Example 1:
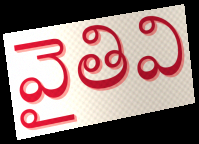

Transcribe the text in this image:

వైతివి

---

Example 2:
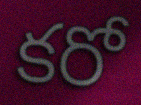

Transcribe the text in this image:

కరో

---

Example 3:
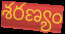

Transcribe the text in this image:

శరణ్యం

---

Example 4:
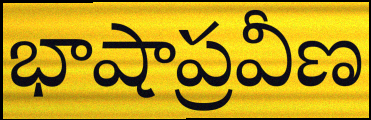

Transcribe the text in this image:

భాషాప్రవీణ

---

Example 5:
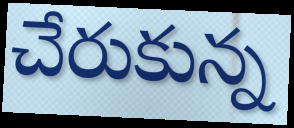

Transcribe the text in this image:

చేరుకున్న